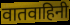
वातवाहिनी